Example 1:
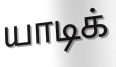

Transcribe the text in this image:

யாடிக்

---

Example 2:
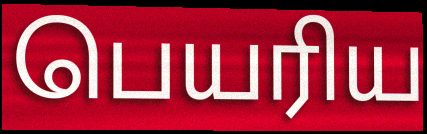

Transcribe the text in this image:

பெயரிய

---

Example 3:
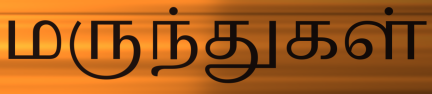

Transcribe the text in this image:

மருந்துகள்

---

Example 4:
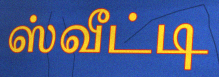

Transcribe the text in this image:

ஸ்வீட்டி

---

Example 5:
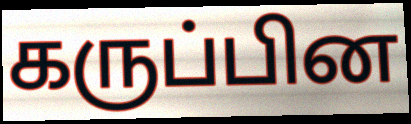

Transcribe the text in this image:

கருப்பின